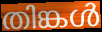
തിങ്കൾ